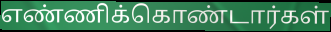
எண்ணிக்கொண்டார்கள்